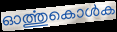
ഓൎത്തുകൊൾക